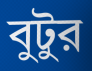
বুটুর